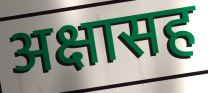
अक्षासह